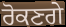
ਰੋਕਣਗੇ